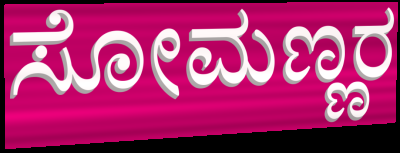
ಸೋಮಣ್ಣರ